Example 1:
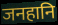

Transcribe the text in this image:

जनहानि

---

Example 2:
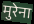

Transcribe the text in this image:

मुरेना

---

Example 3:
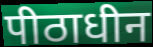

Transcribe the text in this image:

पीठाधीन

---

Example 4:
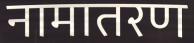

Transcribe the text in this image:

नामातरण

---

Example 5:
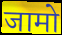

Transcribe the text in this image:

जामो